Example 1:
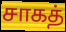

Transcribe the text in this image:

சாகத்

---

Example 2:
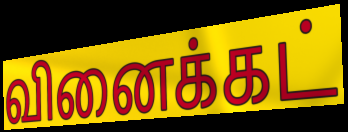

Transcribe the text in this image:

வினைக்கட்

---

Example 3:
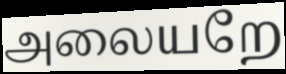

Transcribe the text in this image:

அலையறே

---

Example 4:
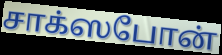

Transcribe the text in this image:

சாக்ஸபோன்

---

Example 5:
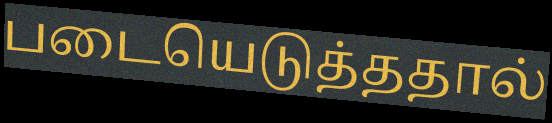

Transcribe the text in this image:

படையெடுத்ததால்